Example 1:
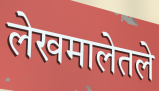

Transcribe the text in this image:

लेखमालेतले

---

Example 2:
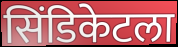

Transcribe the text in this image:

सिंडिकेटला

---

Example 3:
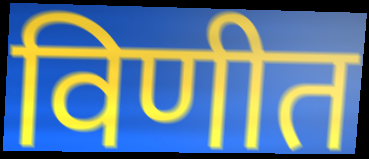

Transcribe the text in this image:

विणीत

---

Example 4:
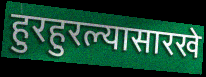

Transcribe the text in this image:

हुरहुरल्यासारखे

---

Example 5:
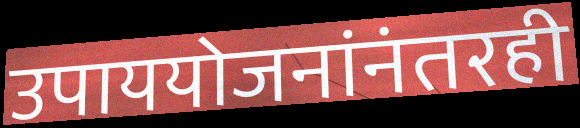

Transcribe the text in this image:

उपाययोजनांनंतरही